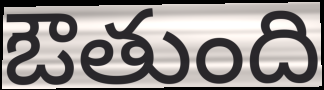
ఔతుంది